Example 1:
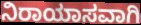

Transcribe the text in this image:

ನಿರಾಯಾಸವಾಗಿ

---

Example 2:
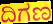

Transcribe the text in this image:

ದಿಗಣ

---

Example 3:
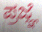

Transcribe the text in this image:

ಪ್ರಜ್ಞೆ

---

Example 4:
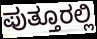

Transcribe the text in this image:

ಪುತ್ತೂರಲ್ಲಿ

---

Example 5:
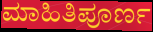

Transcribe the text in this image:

ಮಾಹಿತಿಪೂರ್ಣ